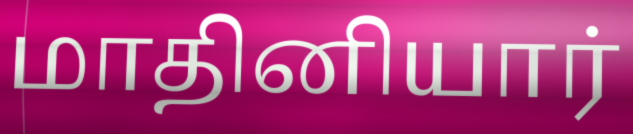
மாதினியார்